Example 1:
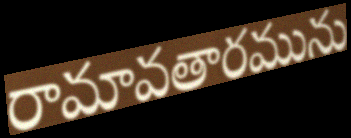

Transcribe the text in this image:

రామావతారమును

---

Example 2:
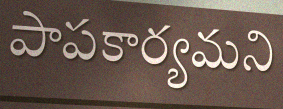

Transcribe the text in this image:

పాపకార్యమని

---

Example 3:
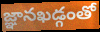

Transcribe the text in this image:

జ్ఞానఖడ్గంతో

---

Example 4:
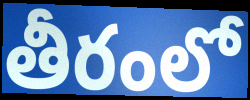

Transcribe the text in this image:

తీరంలో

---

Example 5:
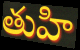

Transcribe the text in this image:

తుహి